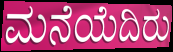
ಮನೆಯೆದಿರು